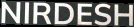
NIRDESH